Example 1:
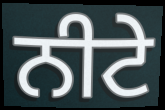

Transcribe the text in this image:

ਨੀਟੇ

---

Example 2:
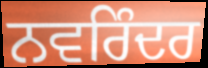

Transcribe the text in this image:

ਨਵਰਿੰਦਰ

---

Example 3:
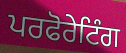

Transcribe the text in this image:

ਪਰਫੋਰੇਟਿੰਗ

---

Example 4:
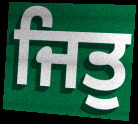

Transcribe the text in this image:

ਜਿਤੁ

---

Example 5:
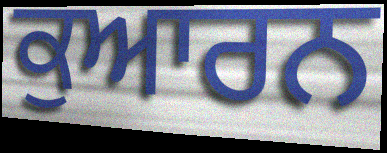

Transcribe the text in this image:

ਕੁਆਰਨ